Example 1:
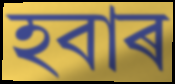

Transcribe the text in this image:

হবাৰ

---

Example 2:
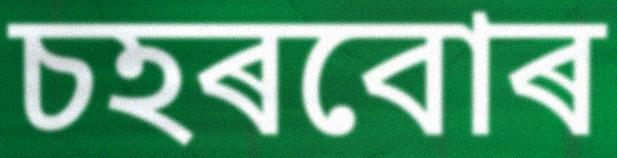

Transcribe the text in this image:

চহৰবোৰ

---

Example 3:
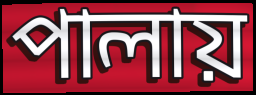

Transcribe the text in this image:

পালায়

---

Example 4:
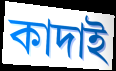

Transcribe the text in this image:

কাদাই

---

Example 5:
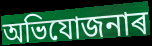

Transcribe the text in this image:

অভিযোজনাৰ